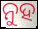
ନୁହ